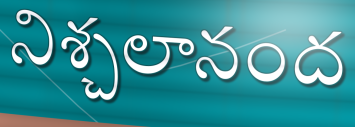
నిశ్చలానంద